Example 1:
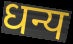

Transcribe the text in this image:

धन्य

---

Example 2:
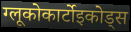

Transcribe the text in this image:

ग्लूकोकार्टोइकोड्स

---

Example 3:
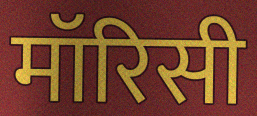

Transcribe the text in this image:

मॉरिसी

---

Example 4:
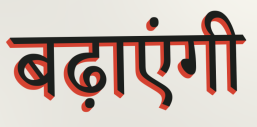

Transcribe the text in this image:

बढ़ाएंगी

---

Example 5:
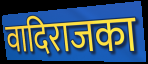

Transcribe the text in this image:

वादिराजका